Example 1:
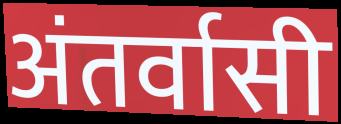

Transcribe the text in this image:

अंतर्वासी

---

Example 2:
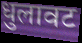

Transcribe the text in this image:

धुलावट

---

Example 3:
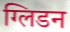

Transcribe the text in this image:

ग्लिडन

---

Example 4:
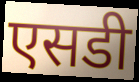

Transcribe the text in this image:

एसडी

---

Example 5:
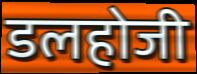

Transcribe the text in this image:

डलहोजी